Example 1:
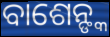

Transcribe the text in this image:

ବାଶେନ୍ଙ୍କ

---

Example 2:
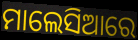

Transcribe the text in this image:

ମାଲେସିଆରେ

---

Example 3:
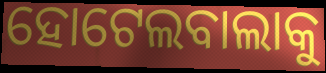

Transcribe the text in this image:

ହୋଟେଲବାଲାକୁ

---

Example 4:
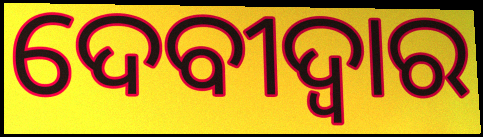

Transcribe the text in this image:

ଦେବୀଦ୍ବାର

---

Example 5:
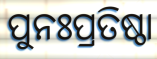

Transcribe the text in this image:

ପୁନଃପ୍ରତିଷ୍ଠା